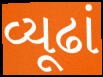
વ્યૂઢાં